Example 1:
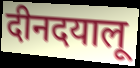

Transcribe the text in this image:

दीनदयालू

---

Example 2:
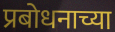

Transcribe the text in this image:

प्रबोधनाच्या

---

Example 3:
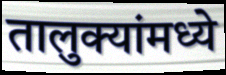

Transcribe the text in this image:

तालुक्यांमध्ये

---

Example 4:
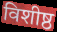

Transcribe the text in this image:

विशीष्ठ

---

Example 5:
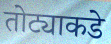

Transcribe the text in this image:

तोट्याकडे